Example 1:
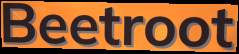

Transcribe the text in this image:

Beetroot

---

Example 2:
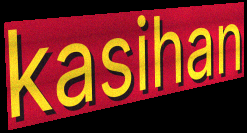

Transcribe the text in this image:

kasihan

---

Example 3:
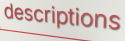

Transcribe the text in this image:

descriptions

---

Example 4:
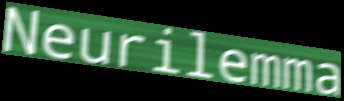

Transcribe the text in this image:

Neurilemma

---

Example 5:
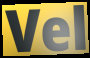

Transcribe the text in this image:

Vel